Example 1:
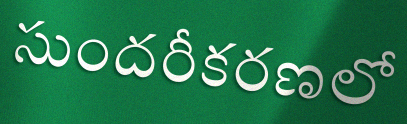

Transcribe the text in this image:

సుందరీకరణలో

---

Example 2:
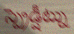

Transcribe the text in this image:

స్ప్రెడ్షీట్ను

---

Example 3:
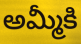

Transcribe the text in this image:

అమ్మీకి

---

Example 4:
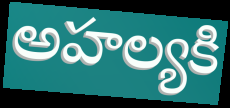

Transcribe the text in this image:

అహల్యకి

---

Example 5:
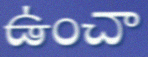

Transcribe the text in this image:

ఉంచా